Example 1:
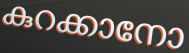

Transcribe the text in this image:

കുറക്കാനോ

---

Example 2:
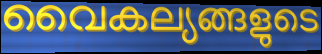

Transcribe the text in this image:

വൈകല്യങ്ങളുടെ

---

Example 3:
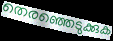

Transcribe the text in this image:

തെരഞ്ഞെടുക്കുക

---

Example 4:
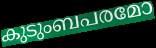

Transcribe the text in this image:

കുടുംബപരമോ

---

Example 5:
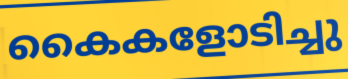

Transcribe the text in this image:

കൈകളോടിച്ചു